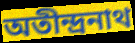
অতীন্দ্রনাথ